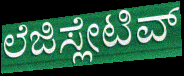
ಲೆಜಿಸ್ಲೇಟಿವ್